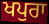
ਖਪੁਰਾ